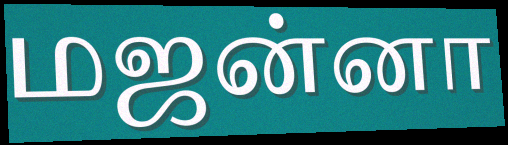
மஜன்னா